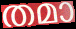
തമാ